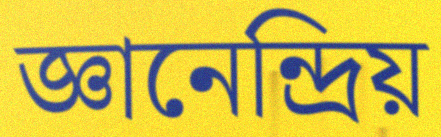
জ্ঞানেন্দ্ৰিয়